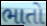
ભાતો